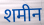
शमीन